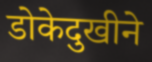
डोकेदुखीने